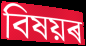
বিষয়ৰ